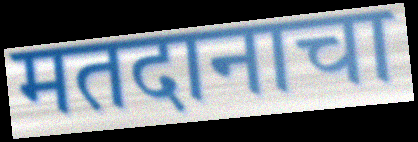
मतदानाचा